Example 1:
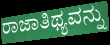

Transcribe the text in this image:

ರಾಜಾತಿಥ್ಯವನ್ನು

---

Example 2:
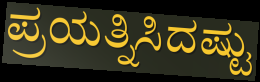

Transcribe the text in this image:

ಪ್ರಯತ್ನಿಸಿದಷ್ಟು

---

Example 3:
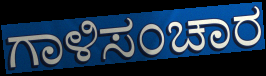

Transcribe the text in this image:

ಗಾಳಿಸಂಚಾರ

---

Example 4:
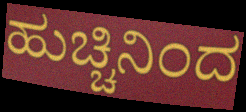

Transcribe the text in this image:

ಹುಚ್ಚಿನಿಂದ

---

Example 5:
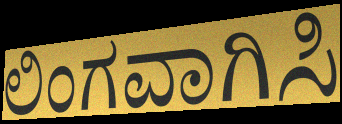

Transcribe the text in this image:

ಲಿಂಗವಾಗಿಸಿ